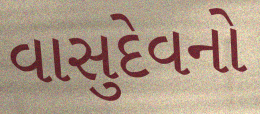
વાસુદેવનો